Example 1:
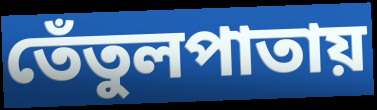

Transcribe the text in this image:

তেঁতুলপাতায়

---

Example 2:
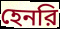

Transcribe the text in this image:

হেনরি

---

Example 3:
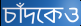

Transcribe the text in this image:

চাঁদকেও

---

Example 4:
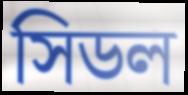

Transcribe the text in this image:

সিডল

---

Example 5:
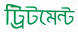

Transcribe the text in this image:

ট্রিটমেন্ট